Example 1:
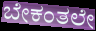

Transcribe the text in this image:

ಬೇಕಂತಲೇ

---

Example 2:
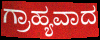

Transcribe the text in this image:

ಗ್ರಾಹ್ಯವಾದ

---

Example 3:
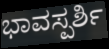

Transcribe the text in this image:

ಭಾವಸ್ಪರ್ಶಿ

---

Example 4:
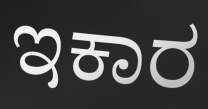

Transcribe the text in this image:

ಇಕಾರ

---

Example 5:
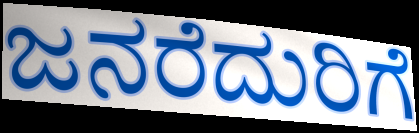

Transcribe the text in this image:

ಜನರೆದುರಿಗೆ